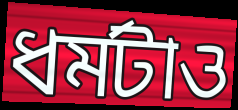
ধর্মটাও